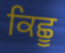
ਕਿਛੂ